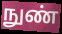
நுண்